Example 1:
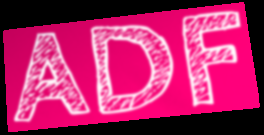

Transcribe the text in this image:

ADF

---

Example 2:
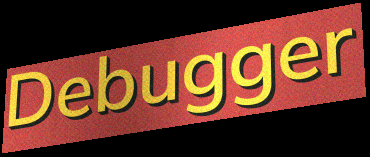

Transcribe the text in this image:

Debugger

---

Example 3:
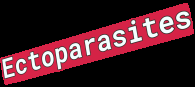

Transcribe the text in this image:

Ectoparasites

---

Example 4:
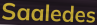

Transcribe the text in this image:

Saaledes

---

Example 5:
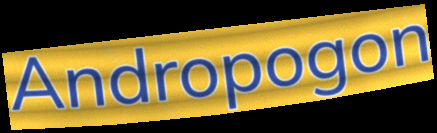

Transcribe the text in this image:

Andropogon